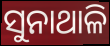
ସୁନାଥାଳି